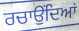
ਰਚਾਉਂਦਿਆਂ